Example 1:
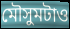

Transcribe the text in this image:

মৌসুমটাও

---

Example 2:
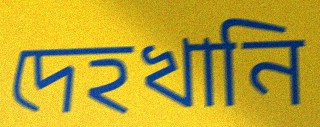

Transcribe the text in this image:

দেহখানি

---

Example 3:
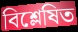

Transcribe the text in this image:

বিশ্লেষিত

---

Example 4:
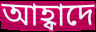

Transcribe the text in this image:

আহ্বাদে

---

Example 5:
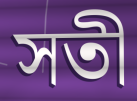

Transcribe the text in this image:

সতী